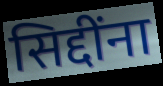
सिद्दींना